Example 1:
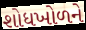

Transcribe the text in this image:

શોધખોળને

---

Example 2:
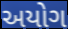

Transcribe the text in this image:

અયોગ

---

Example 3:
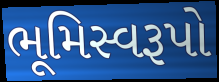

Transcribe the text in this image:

ભૂમિસ્વરૂપો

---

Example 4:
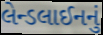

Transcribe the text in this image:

લેન્ડલાઈનનું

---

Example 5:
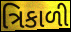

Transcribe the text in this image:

ત્રિકાળી